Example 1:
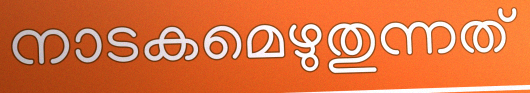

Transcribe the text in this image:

നാടകമെഴുതുന്നത്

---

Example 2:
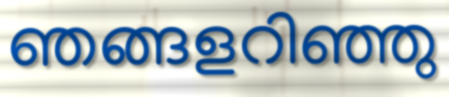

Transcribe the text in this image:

ഞങ്ങളറിഞ്ഞു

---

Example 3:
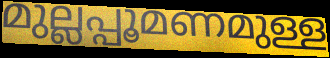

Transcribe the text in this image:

മുല്ലപ്പൂമണമുള്ള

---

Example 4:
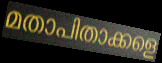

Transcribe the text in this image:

മതാപിതാക്കളെ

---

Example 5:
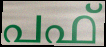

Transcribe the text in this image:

പഫ്